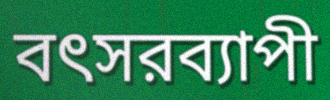
বৎসরব্যাপী